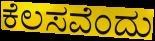
ಕೆಲಸವೆಂದು